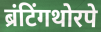
ब्रंटिंगथोरपे